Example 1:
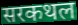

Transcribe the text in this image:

सरकथल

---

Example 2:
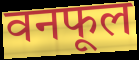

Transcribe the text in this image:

वनफूल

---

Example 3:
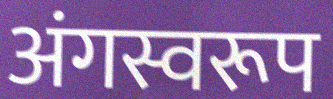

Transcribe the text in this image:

अंगस्वरूप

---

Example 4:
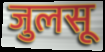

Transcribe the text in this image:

जुलसू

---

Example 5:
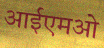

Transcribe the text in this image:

आईएमओ